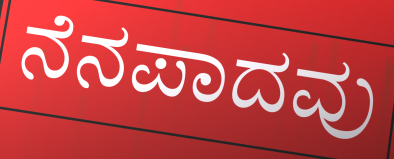
ನೆನಪಾದವು